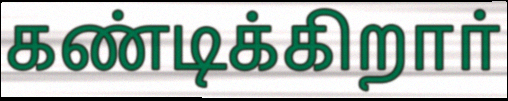
கண்டிக்கிறார்